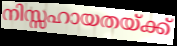
നിസ്സഹായതയ്ക്ക്